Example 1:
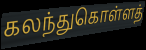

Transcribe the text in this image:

கலந்துகொள்ளத்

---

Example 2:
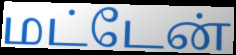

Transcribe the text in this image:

மட்டேன்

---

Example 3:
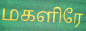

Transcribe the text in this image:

மகளிரே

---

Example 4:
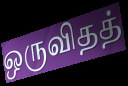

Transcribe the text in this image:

ஒருவிதத்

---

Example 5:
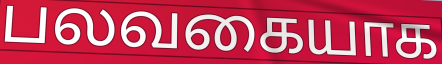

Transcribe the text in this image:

பலவகையாக